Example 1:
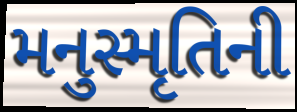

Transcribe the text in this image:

મનુસ્મૃતિની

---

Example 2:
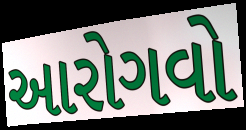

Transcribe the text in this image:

આરોગવો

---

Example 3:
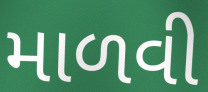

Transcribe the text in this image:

માળવી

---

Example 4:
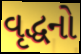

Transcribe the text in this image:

વૃદ્ધનો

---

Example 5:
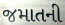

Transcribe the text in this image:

જમાતની